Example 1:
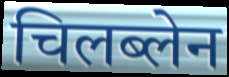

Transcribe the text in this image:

चिलब्लेन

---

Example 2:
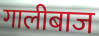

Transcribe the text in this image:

गालीबाज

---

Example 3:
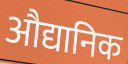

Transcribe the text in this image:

औद्यानिक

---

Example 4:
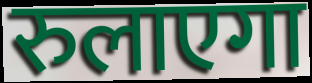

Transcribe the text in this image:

रुलाएगा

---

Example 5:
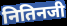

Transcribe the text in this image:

नितिनजी